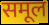
समूल